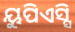
ୟୁପିଏସ୍ସି